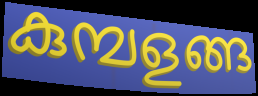
കുമ്പളങ്ങ